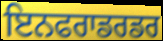
ਇਨਫਰਾਡਰਡਰ